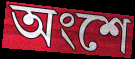
অংশে